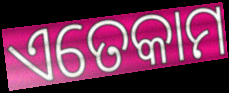
ଏତେକାମ